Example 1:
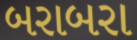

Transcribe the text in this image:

બરાબરા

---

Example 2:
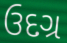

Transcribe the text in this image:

ઉદગ્ર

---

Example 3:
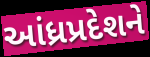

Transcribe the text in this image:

આંધ્રપ્રદેશને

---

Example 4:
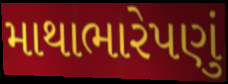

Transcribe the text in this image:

માથાભારેપણું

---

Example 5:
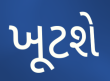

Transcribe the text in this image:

ખૂટશે